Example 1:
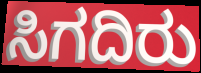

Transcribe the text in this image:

ಸಿಗದಿರು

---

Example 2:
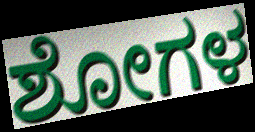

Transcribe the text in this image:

ಶೋಗಳ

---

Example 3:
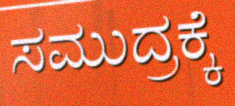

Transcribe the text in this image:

ಸಮುದ್ರಕ್ಕೆ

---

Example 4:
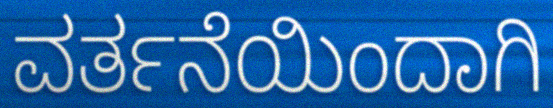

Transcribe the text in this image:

ವರ್ತನೆಯಿಂದಾಗಿ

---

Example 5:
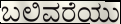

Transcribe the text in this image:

ಬಲಿವರೆಯು